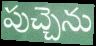
పుచ్చెను